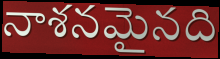
నాశనమైనది